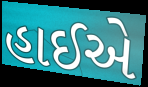
હાઈએ